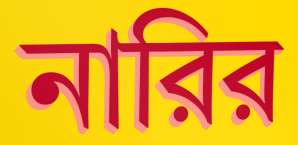
নারির